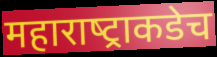
महाराष्ट्राकडेच